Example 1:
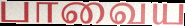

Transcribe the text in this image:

பாவைய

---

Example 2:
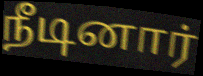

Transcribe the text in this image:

நீடினார்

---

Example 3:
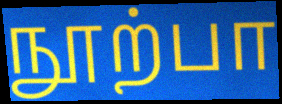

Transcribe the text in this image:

நூற்பா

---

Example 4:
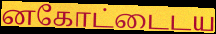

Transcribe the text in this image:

னகோட்டைடய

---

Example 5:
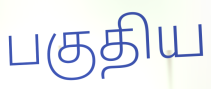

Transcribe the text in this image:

பகுதிய